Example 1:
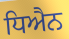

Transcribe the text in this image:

ਧਿਐਨ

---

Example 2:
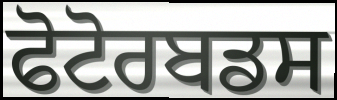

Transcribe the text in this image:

ਫੋਟੋਰਬਡਸ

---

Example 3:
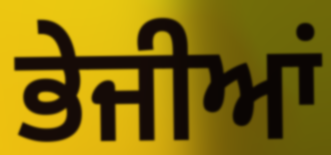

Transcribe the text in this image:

ਭੇਜੀਆਂ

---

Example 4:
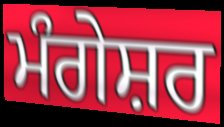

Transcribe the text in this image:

ਮੰਗੇਸ਼ਰ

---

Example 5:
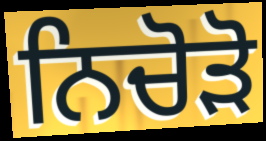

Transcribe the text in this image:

ਨਿਚੋੜੋ